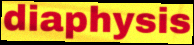
diaphysis